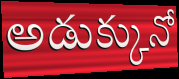
అడుక్కునో